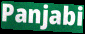
Panjabi